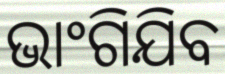
ଭାଂଗିଯିବ